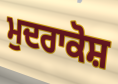
ਮੁਦਰਾਕੋਸ਼